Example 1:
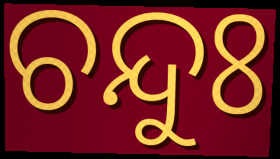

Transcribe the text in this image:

ଚନ୍ଦୁଃ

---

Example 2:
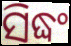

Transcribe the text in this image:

ସିଦ୍ଧଂ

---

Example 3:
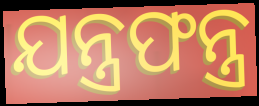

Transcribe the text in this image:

ଯନ୍ତ୍ରଫନ୍ତ୍ର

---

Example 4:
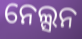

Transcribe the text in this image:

ନେଲ୍ସନ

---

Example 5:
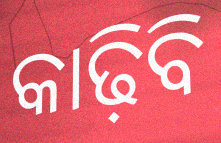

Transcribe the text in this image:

କାଢ଼ିବି